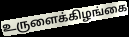
உருளைக்கிழங்கை